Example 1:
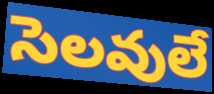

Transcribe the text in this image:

సెలవులే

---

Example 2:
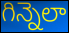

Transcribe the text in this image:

గిన్నెలా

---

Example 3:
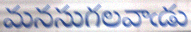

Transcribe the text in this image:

మనసుగలవాఁడు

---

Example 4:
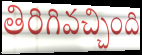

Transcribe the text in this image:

తిరిగివచ్చింది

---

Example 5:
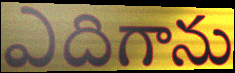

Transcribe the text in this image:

ఎదిగాను